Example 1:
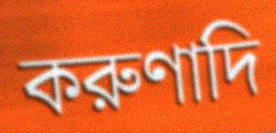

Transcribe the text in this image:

করুণাদি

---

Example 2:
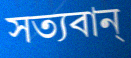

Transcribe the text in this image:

সত্যবান্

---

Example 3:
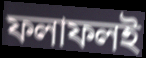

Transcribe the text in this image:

ফলাফলই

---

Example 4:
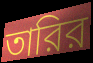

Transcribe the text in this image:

তারির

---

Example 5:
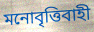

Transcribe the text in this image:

মনোবৃত্তিবাহী